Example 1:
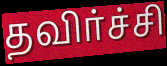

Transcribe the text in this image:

தவிர்ச்சி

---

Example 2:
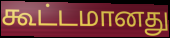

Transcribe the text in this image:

கூட்டமானது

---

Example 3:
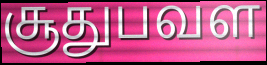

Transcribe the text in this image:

சூதுபவள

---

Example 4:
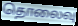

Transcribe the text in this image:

தொலைவு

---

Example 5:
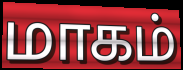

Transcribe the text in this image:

மாகம்